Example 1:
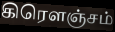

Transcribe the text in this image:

கிரௌஞ்சம்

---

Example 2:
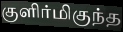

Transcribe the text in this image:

குளிர்மிகுந்த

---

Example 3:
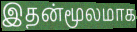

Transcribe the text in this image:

இதன்மூலமாக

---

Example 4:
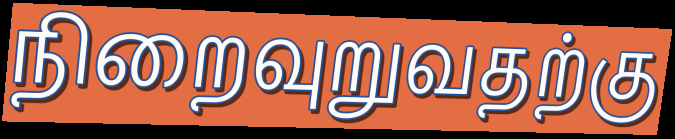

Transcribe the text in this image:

நிறைவுறுவதற்கு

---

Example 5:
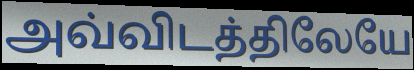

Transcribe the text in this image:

அவ்விடத்திலேயே